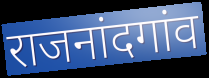
राजनांदगांव